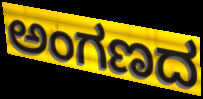
ಅಂಗಣದ